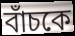
বাঁচকে